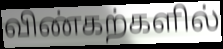
விண்கற்களில்